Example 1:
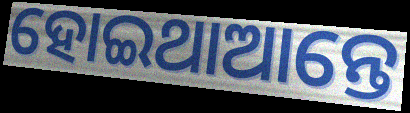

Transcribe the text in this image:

ହୋଇଥାଆନ୍ତେ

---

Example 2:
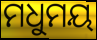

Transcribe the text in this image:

ମଧୁମୟ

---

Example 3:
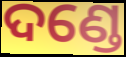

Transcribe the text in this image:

ଦଣ୍ଡେ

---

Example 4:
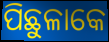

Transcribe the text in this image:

ପିଛୁଳାକେ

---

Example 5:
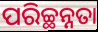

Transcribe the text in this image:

ପରିଚ୍ଛନ୍ନତା